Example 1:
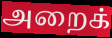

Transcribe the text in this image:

அறைக்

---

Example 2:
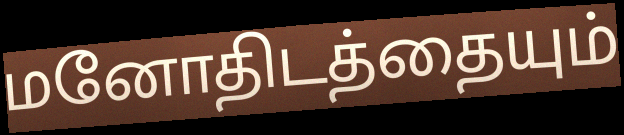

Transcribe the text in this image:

மனோதிடத்தையும்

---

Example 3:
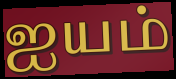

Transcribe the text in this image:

ஐயம்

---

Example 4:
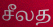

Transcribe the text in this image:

சீலத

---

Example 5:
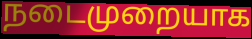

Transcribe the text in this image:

நடைமுறையாக